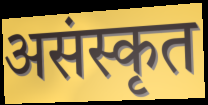
असंस्कृत